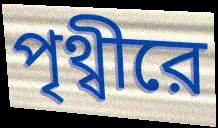
পৃথ্বীরে